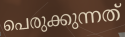
പെരുക്കുന്നത്